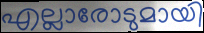
എല്ലാരോടുമായി